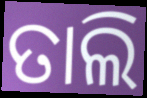
ତାଲି